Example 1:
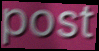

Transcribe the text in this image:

post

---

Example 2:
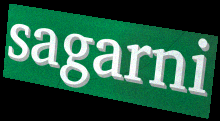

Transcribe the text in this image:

sagarni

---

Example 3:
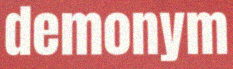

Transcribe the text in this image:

demonym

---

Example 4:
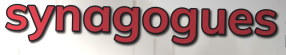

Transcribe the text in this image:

synagogues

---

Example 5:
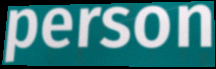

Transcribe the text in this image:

person